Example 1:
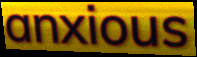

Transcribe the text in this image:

anxious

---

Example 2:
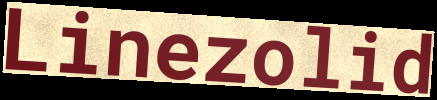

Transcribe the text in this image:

Linezolid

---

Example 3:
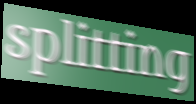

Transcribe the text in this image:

splitting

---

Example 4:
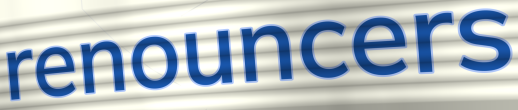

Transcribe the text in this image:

renouncers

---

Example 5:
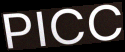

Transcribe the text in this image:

PICC